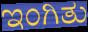
ಇಂಗಿತು